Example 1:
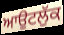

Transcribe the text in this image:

ਆਉਟਲੁੱਕ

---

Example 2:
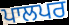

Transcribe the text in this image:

ਪਾਲਪਰ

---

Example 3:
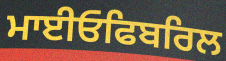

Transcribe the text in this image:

ਮਾਈਓਫਿਬਰਿਲ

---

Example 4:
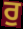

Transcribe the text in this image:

ਰੁ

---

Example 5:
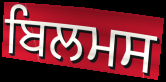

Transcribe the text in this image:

ਬਿਲਮਸ